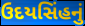
ઉદયસિંહનું